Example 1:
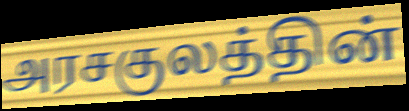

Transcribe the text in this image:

அரசகுலத்தின்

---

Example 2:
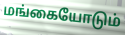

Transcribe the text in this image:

மங்கையோடும்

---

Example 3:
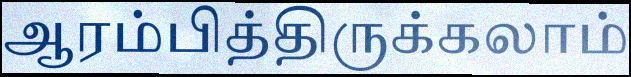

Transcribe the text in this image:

ஆரம்பித்திருக்கலாம்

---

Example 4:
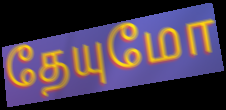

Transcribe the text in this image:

தேயுமோ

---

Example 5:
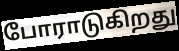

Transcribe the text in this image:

போராடுகிறது